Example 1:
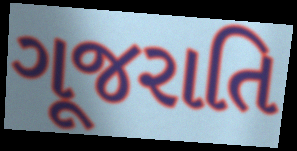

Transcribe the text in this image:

ગૂજરાતિ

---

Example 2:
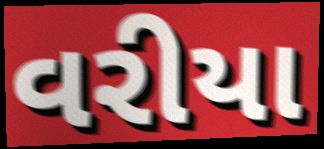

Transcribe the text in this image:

વરીયા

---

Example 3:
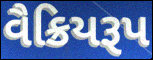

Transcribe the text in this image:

વૈક્રિયરૂપ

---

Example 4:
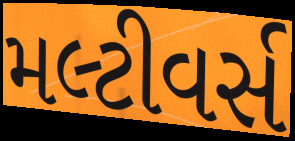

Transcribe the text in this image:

મલ્ટીવર્સ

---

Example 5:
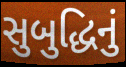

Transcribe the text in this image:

સુબુદ્ધિનું